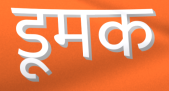
डूमक